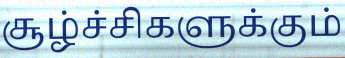
சூழ்ச்சிகளுக்கும்